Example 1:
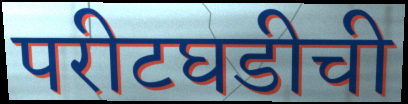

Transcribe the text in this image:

परीटघडीची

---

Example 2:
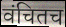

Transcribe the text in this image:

वंचितच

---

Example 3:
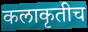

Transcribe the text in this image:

कलाकृतीच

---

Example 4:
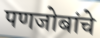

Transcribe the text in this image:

पणजोबांचे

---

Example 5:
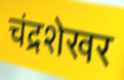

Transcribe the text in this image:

चंद्रशेखर